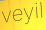
veyil